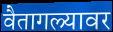
वैतागल्यावर